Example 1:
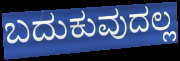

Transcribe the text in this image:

ಬದುಕುವುದಲ್ಲ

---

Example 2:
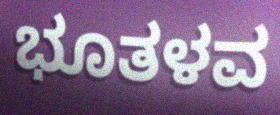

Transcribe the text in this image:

ಭೂತಳವ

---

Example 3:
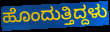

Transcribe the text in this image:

ಹೊಂದುತ್ತಿದ್ದಳು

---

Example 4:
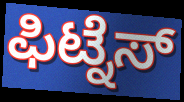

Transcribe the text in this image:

ಫಿಟ್ನೆಸ್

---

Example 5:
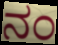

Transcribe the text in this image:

ನಂ